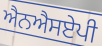
ਐਨਐਸਏਪੀ